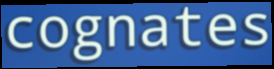
cognates